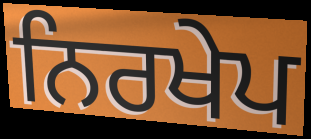
ਨਿਰਖੇਪ